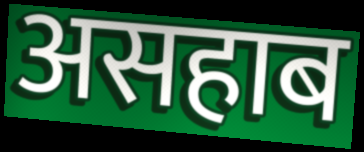
असहाब